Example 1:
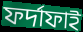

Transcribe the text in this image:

ফর্দাফাই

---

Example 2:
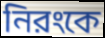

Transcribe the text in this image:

নিরংকে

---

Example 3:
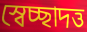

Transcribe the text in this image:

স্বেচ্ছাদত্ত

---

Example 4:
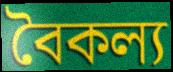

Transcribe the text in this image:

বৈকল্য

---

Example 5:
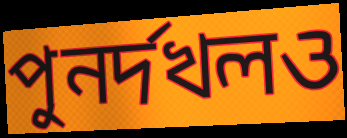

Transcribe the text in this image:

পুনর্দখলও